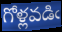
గోళ్లవడిఁ